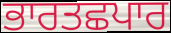
ਭਾਰਤਛਪਾਰ